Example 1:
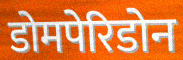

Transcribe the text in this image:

डोमपेरिडोन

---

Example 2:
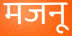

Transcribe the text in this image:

मजनू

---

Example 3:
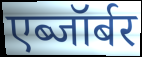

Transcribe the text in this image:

एब्जॉर्बर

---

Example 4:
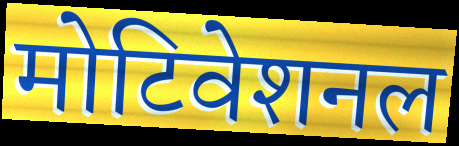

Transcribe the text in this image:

मोटिवेशनल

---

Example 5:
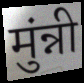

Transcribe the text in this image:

मुंन्नी